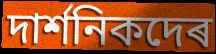
দাৰ্শনিকদেৰ